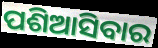
ପଶିଆସିବାର